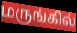
மருங்கில்